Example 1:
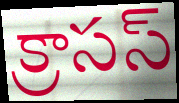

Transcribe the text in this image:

క్రాసస్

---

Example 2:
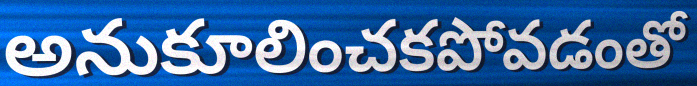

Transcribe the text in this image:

అనుకూలించకపోవడంతో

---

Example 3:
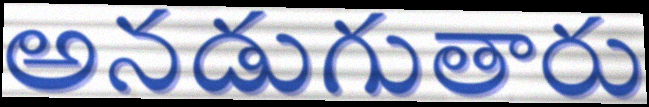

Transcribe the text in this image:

అనడుగుతారు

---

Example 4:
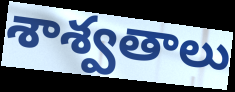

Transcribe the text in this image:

శాశ్వతాలు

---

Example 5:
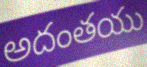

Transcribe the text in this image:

అదంతయు